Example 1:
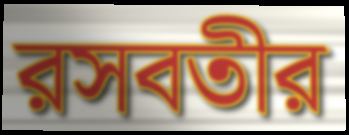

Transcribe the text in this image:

রসবতীর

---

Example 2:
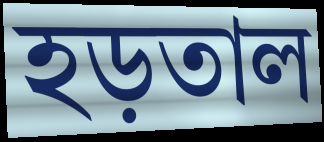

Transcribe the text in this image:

হড়তাল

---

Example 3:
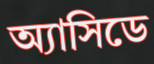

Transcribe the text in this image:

অ্যাসিডে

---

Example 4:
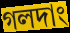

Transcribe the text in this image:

গলদাং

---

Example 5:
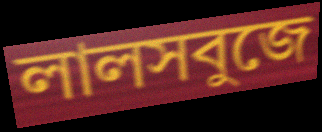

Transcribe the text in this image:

লালসবুজে